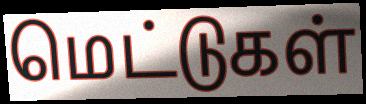
மெட்டுகள்